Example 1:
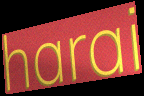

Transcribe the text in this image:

harai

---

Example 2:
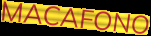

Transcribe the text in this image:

MACAFONO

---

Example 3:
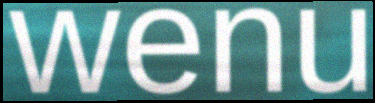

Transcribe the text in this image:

wenu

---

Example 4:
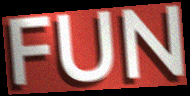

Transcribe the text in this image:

FUN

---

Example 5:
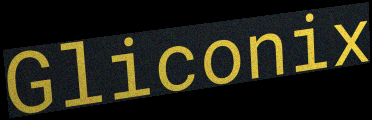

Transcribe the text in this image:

Gliconix